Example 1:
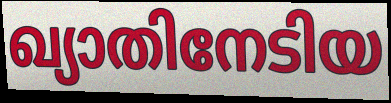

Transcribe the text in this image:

ഖ്യാതിനേടിയ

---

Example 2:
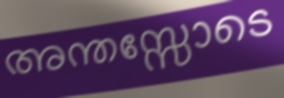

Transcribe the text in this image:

അന്തസ്സോടെ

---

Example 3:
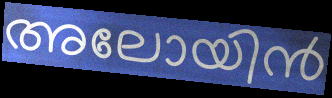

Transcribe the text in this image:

അലോയിൻ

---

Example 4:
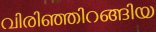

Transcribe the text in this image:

വിരിഞ്ഞിറങ്ങിയ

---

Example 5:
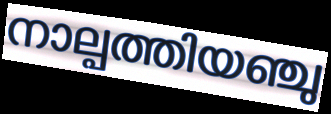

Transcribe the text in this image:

നാല്പത്തിയഞ്ചു